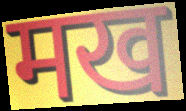
मख